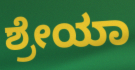
ಶ್ರೇಯಾ